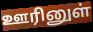
ஊரினுள்